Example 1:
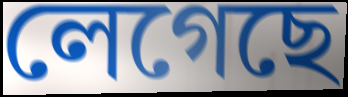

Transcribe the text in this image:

লেগেছে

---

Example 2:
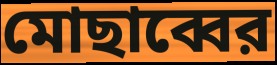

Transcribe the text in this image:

মোছাব্বের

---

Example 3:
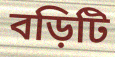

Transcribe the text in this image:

বড়িটি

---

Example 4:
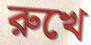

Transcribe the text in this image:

রুখে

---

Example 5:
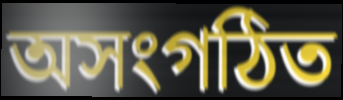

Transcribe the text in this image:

অসংগঠিত